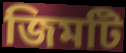
জিমটি